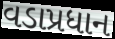
વડાપ્રધાન